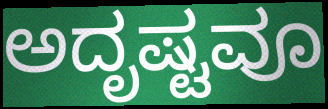
ಅದೃಷ್ಟವೂ